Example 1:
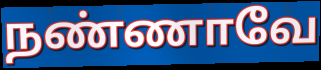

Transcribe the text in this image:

நண்ணாவே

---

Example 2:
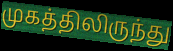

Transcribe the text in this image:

முகத்திலிருந்து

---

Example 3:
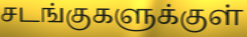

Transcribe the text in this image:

சடங்குகளுக்குள்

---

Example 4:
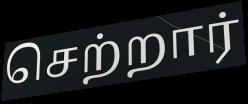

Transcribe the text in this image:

செற்றார்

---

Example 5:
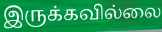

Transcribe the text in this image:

இருக்கவில்லை